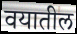
वयातील